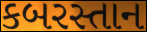
કબરસ્તાન